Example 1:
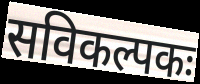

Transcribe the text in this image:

सविकल्पकः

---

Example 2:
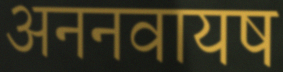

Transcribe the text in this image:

अननवायष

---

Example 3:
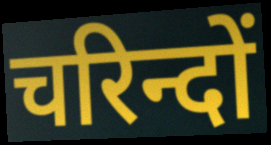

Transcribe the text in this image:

चरिन्दों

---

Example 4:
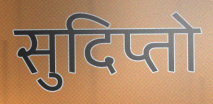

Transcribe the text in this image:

सुदिप्तो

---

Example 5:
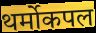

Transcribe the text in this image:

थर्मोकपल